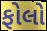
ફોલો